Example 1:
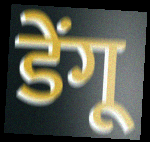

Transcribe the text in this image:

डेंगू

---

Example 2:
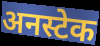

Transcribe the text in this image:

अनस्टेक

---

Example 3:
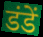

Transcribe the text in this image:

डंडें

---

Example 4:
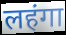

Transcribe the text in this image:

लहंगा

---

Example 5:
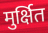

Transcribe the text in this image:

मुर्क्षित